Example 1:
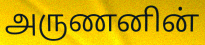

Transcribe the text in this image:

அருணனின்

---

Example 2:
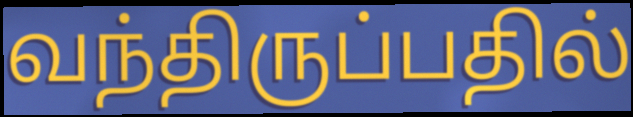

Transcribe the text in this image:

வந்திருப்பதில்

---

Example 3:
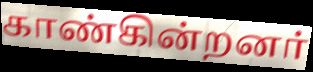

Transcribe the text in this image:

காண்கின்றனர்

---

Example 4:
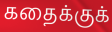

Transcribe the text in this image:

கதைக்குக்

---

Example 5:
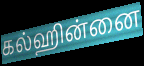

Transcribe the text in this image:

கல்ஹின்னை